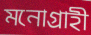
মনোগ্রাহী